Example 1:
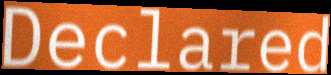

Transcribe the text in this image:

Declared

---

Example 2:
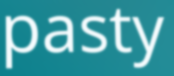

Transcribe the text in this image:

pasty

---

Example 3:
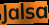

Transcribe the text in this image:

Jalsa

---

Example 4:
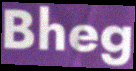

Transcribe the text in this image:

Bheg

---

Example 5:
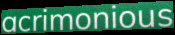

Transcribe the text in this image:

acrimonious